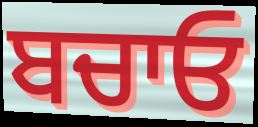
ਬਚਾਓ